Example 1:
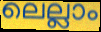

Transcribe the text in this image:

ലെല്ലാം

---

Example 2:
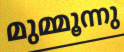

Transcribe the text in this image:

മുമ്മൂന്നു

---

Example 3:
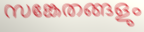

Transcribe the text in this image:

സങ്കേതങ്ങളും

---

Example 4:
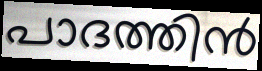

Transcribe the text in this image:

പാദത്തിൻ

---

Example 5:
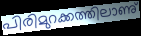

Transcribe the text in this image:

പിരിമുറക്കത്തിലാണു്